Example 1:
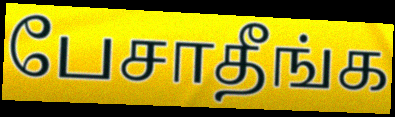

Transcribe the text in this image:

பேசாதீங்க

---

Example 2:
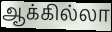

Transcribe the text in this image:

ஆக்கில்லா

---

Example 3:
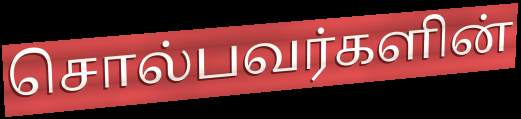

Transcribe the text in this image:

சொல்பவர்களின்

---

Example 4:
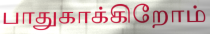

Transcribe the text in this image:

பாதுகாக்கிறோம்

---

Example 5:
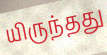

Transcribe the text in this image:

யிருந்தது